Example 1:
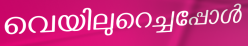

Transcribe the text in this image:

വെയിലുറെച്ചപ്പോൾ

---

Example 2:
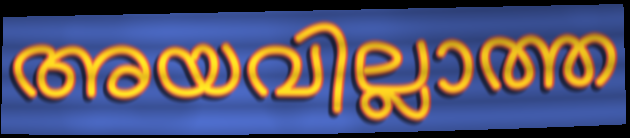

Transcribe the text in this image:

അയവില്ലാത്ത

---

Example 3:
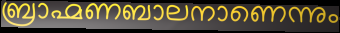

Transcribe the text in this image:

ബ്രാഹ്മണബാലനാണെന്നും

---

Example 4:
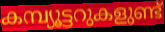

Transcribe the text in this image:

കമ്പ്യൂട്ടറുകളുണ്ട്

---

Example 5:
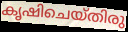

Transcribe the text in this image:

കൃഷിചെയ്തിരു